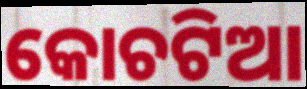
କୋଚଟିଆ